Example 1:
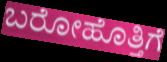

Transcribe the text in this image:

ಬರೋಹೊತ್ತಿಗೆ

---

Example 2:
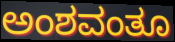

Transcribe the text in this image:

ಅಂಶವಂತೂ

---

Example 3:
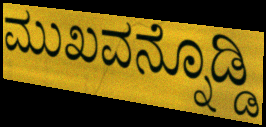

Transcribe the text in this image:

ಮುಖವನ್ನೊಡ್ಡಿ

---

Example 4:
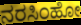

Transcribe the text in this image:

ನರಸಿಂಹೋ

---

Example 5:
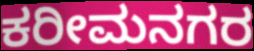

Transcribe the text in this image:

ಕರೀಮನಗರ